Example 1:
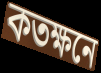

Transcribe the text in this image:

কতক্ষনে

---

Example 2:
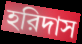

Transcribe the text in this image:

হরিদাস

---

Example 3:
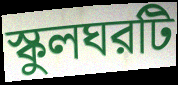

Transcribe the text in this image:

স্কুলঘরটি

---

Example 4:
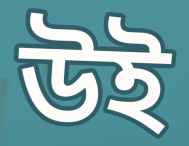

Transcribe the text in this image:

উই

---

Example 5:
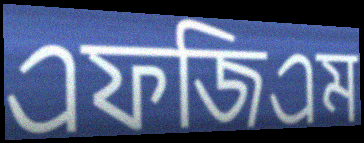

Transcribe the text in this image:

এফজিএম